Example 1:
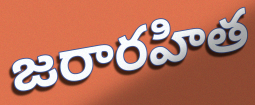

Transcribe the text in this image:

జరారహిత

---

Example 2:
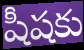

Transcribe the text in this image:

షీషకు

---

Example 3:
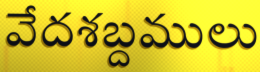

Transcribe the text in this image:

వేదశబ్దములు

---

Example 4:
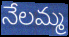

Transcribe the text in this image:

నేలమ్మ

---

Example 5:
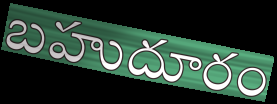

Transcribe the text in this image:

బహుదూరం